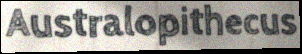
Australopithecus